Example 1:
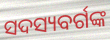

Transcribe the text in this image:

ସଦସ୍ୟବର୍ଗଙ୍କ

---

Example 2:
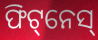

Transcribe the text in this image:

ଫିଟ୍‌ନେସ୍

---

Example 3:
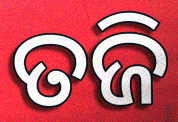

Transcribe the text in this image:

ତଜି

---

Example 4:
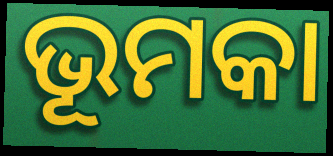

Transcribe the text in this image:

ଭୂମକା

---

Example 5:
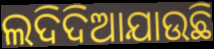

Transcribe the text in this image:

ଲଦିଦିଆଯାଉଛି